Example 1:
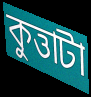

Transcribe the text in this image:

কুত্তাটা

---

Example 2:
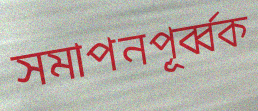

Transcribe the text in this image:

সমাপনপূর্ব্বক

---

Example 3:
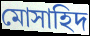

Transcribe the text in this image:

মোসাহিদ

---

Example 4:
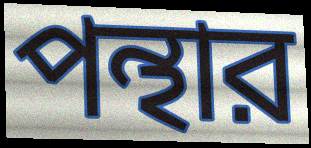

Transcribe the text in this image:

পন্থার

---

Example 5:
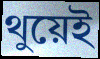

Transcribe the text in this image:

থুয়েই